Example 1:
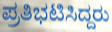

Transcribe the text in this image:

ಪ್ರತಿಭಟಿಸಿದ್ದರು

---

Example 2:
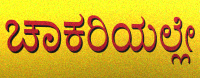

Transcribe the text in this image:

ಚಾಕರಿಯಲ್ಲೇ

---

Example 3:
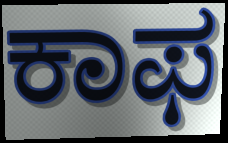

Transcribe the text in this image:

ಕಾಫ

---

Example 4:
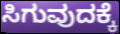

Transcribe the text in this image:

ಸಿಗುವುದಕ್ಕೆ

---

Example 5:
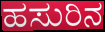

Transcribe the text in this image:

ಹಸುರಿನ